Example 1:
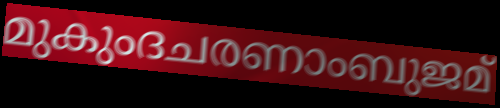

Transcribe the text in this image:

മുകുംദചരണാംബുജമ്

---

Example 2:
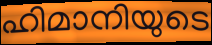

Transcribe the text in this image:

ഹിമാനിയുടെ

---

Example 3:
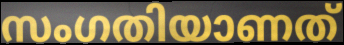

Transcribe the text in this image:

സംഗതിയാണത്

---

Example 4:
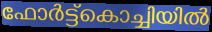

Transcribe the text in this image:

ഫോർട്ട്കൊച്ചിയിൽ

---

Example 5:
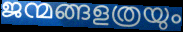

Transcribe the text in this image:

ജന്മങ്ങളത്രയും